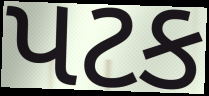
પટક